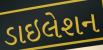
ડાઇલેશન